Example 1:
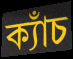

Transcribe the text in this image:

ক্যাঁচ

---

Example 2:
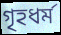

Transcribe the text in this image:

গৃহধর্ম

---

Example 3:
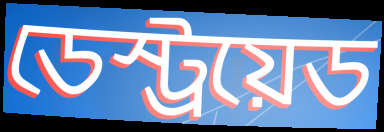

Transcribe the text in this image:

ডেস্ট্রয়েড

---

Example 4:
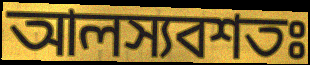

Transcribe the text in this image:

আলস্যবশতঃ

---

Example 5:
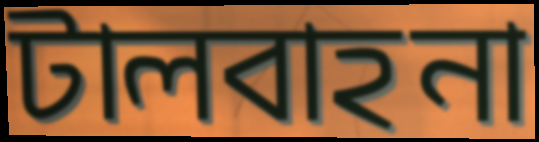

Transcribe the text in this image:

টালবাহনা